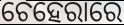
ଚେହେରାରେ